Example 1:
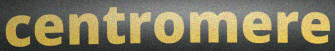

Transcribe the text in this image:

centromere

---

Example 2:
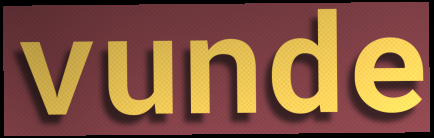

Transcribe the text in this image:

vunde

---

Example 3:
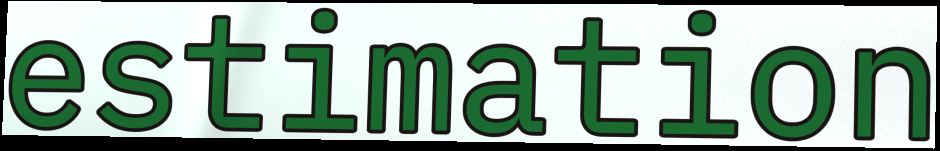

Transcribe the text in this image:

estimation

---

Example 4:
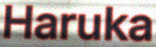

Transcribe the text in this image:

Haruka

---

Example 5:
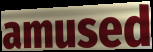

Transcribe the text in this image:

amused